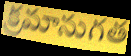
క్రమానుగత